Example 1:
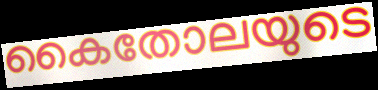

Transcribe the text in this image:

കൈതോലയുടെ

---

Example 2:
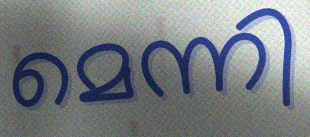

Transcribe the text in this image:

മെന്നി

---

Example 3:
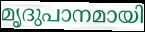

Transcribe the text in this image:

മൃദുപാനമായി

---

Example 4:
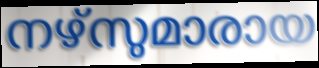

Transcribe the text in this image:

നഴ്സുമാരായ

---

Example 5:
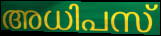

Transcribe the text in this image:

അധിപസ്